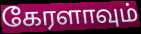
கேரளாவும்